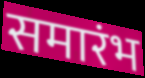
समारंभ